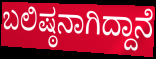
ಬಲಿಷ್ಠನಾಗಿದ್ದಾನೆ